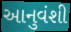
આનુવંશી